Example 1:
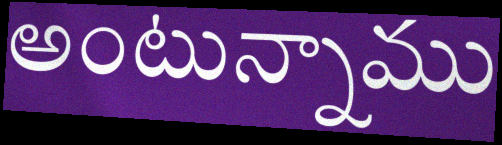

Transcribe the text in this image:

అంటున్నాము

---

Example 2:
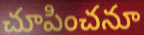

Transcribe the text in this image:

చూపించనూ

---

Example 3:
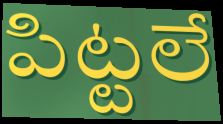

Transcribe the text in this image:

పిట్టలే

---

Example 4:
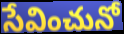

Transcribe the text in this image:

సేవించునో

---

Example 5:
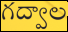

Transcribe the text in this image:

గద్వాల